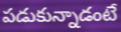
పడుకున్నాడంటే